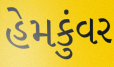
હેમકુંવર